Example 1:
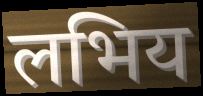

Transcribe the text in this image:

लभिय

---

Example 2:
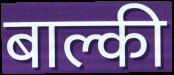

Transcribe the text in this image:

बाल्की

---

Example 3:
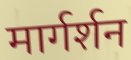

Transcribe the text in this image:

मार्गर्शन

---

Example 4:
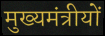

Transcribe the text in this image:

मुख्यमंत्रीयों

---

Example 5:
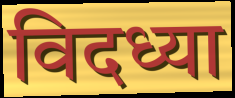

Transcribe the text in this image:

विदध्या